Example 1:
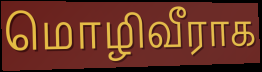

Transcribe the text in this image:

மொழிவீராக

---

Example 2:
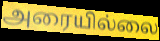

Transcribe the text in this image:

அரையில்லை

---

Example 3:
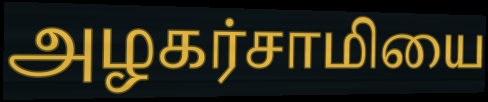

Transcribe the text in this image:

அழகர்சாமியை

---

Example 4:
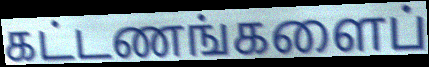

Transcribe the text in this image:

கட்டணங்களைப்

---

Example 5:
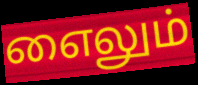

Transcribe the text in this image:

எைலும்